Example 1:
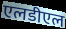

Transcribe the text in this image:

एलडीएल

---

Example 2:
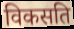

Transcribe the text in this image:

विकसति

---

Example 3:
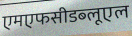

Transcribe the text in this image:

एमएफसीडब्‍लूएल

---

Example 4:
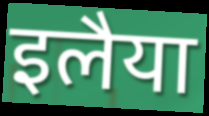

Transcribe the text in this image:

इलैया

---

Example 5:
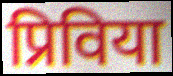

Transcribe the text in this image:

प्रिविया